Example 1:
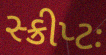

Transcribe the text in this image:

સ્ક્રીપ્ટઃ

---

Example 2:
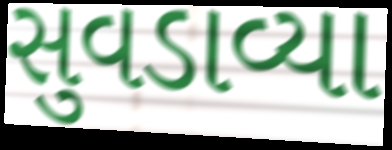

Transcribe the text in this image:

સુવડાવ્યા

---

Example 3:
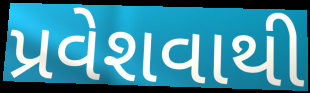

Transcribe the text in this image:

પ્રવેશવાથી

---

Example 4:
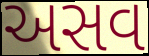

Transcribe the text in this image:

અસવ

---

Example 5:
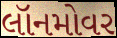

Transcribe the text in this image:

લૉનમોવર